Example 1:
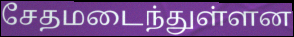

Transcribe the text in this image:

சேதமடைந்துள்ளன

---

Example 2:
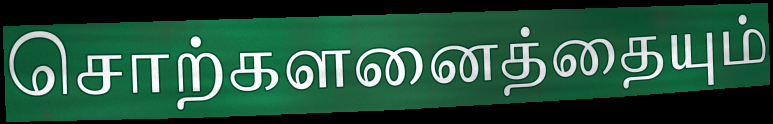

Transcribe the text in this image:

சொற்களனைத்தையும்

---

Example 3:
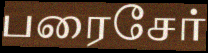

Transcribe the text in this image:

பரைசேர்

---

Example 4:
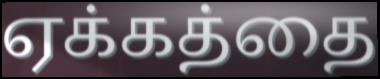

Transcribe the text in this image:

ஏக்கத்தை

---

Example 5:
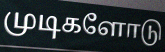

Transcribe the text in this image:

முடிகளோடு